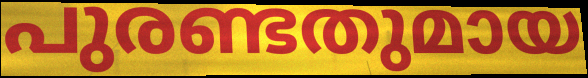
പുരണ്ടതുമായ